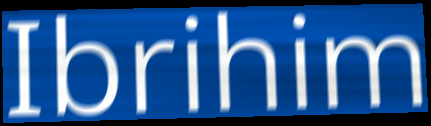
Ibrihim